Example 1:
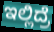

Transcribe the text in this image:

ಇಲ್ಲಿದ್ರೆ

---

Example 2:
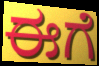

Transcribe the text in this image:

ಈಗೆ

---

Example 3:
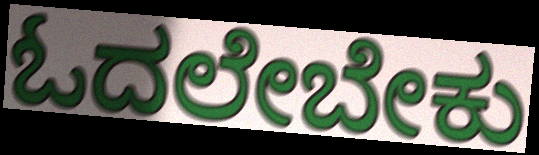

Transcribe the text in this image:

ಓದಲೇಬೇಕು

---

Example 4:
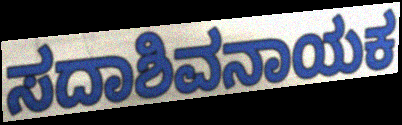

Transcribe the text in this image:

ಸದಾಶಿವನಾಯಕ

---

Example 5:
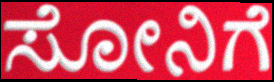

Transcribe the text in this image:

ಸೋನಿಗೆ